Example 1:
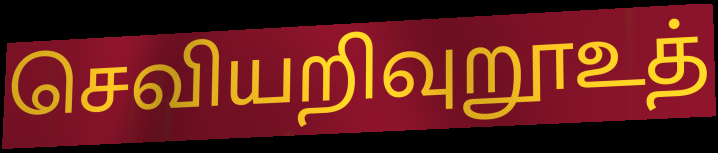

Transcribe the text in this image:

செவியறிவுறூஉத்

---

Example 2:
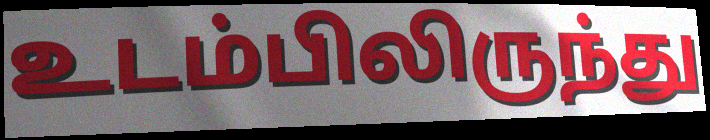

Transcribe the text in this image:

உடம்பிலிருந்து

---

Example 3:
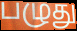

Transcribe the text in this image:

பழுது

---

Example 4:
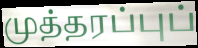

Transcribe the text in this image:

முத்தரப்புப்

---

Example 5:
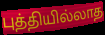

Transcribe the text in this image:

புத்தியில்லாத